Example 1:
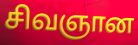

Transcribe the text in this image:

சிவஞான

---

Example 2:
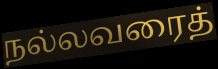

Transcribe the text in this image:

நல்லவரைத்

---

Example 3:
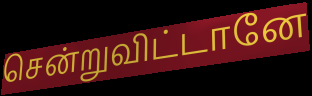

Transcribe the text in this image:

சென்றுவிட்டானே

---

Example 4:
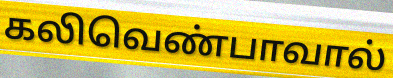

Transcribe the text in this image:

கலிவெண்பாவால்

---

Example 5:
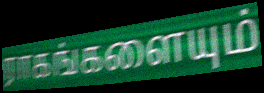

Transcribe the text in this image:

ராகங்களையும்